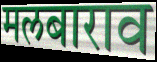
मलबाराव